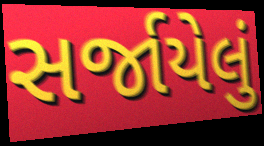
સર્જાયેલું